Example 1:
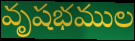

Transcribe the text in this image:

వృషభముల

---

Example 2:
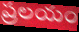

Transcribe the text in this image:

ప్రలయం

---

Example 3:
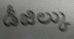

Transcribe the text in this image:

డీజిల్కు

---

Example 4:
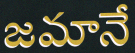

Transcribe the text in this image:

జమానే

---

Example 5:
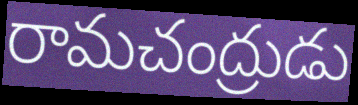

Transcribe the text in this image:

రామచంద్రుడు